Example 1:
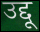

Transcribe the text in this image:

उद्दू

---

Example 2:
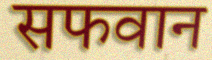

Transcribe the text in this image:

सफवान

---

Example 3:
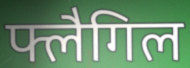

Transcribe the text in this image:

फ्लैगिल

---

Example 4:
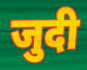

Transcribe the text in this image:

जुदी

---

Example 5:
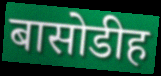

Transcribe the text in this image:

बासोडीह